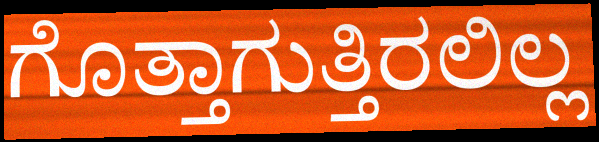
ಗೊತ್ತಾಗುತ್ತಿರಲಿಲ್ಲ